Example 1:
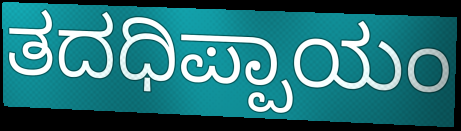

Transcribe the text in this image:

ತದಧಿಪ್ಪಾಯಂ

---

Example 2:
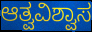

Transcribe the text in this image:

ಆತ್ವವಿಶ್ವಾಸ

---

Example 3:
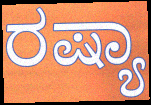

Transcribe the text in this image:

ರಷ್ಯಾ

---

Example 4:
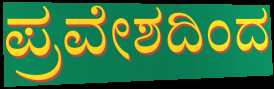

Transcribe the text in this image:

ಪ್ರವೇಶದಿಂದ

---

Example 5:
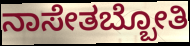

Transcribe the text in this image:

ನಾಸೇತಬ್ಬೋತಿ